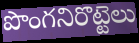
పొంగనిరొట్టెలు